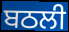
ਬਠਲੀ